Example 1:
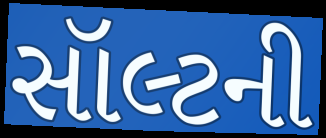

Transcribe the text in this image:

સૉલ્ટની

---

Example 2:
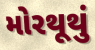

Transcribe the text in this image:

મોરથૂથું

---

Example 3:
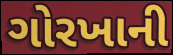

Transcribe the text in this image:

ગોરખાની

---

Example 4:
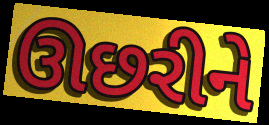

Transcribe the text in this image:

ઊછરીને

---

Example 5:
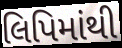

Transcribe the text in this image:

લિપિમાંથી